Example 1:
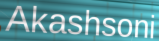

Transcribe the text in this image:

Akashsoni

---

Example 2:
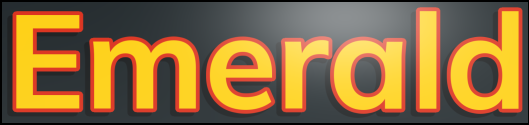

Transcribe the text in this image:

Emerald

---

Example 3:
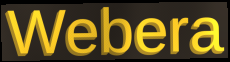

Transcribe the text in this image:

Webera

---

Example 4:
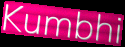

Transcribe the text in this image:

Kumbhi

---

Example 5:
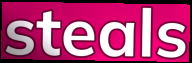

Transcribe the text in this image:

steals